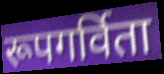
रूपगर्विता